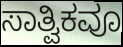
ಸಾತ್ವಿಕವೂ